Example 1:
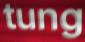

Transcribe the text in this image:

tung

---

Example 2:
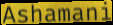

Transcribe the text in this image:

Ashamani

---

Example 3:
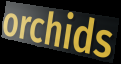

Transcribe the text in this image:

orchids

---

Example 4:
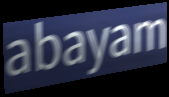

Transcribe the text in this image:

abayam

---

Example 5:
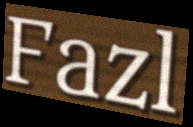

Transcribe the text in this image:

Fazl